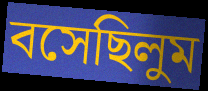
বসেছিলুম